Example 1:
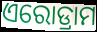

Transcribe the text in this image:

ଏରୋଡ୍ରାମ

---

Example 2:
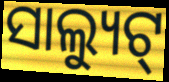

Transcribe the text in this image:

ସାଲ୍ୟୁଟ୍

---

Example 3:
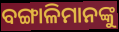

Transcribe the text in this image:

ବଙ୍ଗାଳିମାନଙ୍କୁ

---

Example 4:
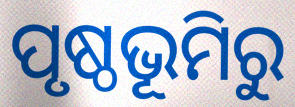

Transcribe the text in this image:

ପୃଷ୍ଠଭୂମିରୁ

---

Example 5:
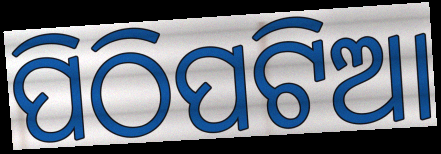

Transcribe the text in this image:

ପିଠିପଟିଆ